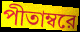
পীতাম্বরে